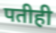
पतीही